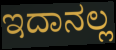
ಇದಾನಲ್ಲ